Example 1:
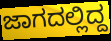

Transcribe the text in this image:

ಜಾಗದಲ್ಲಿದ್ದ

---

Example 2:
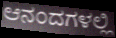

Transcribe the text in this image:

ಆನಂದಗಳಲ್ಲಿ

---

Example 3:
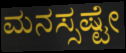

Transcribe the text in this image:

ಮನಸ್ಸಷ್ಟೇ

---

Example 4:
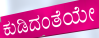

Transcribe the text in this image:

ಕುಡಿದಂತೆಯೇ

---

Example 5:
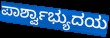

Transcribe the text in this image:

ಪಾರ್ಶ್ವಾಭ್ಯುದಯ